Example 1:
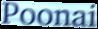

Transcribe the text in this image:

Poonai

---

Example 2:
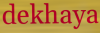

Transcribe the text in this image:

dekhaya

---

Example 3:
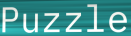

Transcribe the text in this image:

Puzzle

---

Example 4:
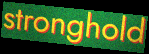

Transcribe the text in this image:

stronghold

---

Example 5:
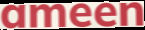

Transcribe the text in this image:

ameen